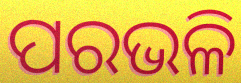
ପରଭଳି